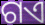
ଗଏ